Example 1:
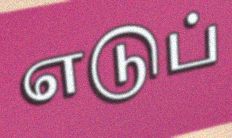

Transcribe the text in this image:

எடுப்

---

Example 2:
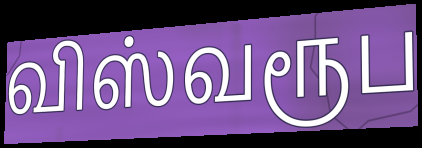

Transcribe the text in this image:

விஸ்வரூப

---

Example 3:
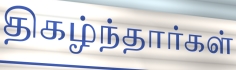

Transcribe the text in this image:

திகழ்ந்தார்கள்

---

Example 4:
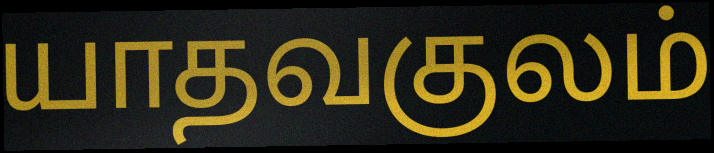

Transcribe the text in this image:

யாதவகுலம்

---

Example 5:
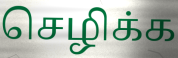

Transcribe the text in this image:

செழிக்க